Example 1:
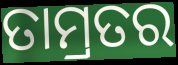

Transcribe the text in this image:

ତାମ୍ରତର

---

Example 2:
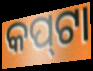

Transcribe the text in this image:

କପ୍‍ଟା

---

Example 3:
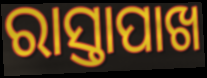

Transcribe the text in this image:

ରାସ୍ତାପାଖ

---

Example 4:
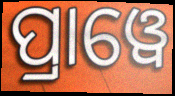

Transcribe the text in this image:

ପ୍ରାୱେ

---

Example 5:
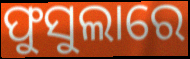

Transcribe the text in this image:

ଫୁସୁଲାରେ